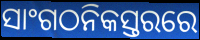
ସାଂଗଠନିକସ୍ତରରେ